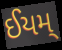
ઈયમ્